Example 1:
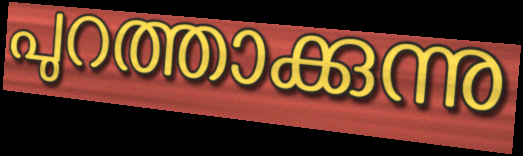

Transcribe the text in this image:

പുറത്താക്കുന്നു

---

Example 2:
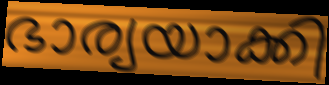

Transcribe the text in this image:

ഭാര്യയാക്കി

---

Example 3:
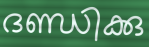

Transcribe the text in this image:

ദണ്ഡിക്കു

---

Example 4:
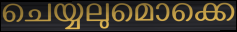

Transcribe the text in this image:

ചെയ്യലുമൊക്കെ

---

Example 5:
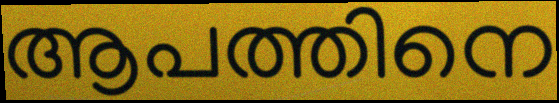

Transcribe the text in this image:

ആപത്തിനെ